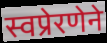
स्वप्रेरणेने